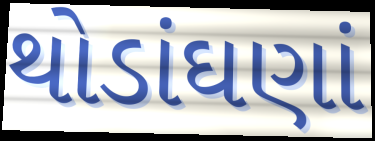
થોડાંઘણાં